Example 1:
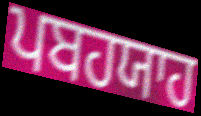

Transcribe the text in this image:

ਪਬਹਯਾਹ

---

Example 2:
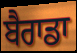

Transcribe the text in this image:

ਬੈਰਾਡਾ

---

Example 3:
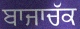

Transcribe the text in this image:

ਬਾਜਾਚੱਕ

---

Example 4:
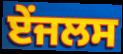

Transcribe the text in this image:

ਏਂਜਲਸ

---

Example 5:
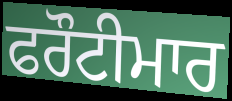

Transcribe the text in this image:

ਫਰੌਟੀਮਾਰ